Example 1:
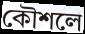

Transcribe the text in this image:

কৌশলে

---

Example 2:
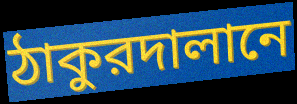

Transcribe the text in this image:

ঠাকুরদালানে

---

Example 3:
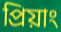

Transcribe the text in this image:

প্রিয়াং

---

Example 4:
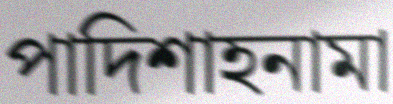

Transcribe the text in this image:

পাদিশাহনামা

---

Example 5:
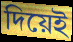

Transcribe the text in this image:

দিয়েই